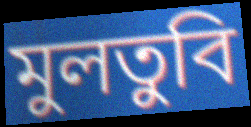
মুলতুবি